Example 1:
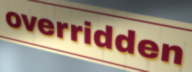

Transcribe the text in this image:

overridden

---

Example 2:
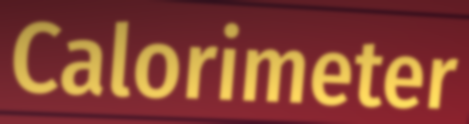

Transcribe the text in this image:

Calorimeter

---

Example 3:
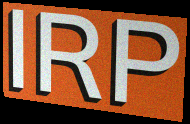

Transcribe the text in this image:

IRP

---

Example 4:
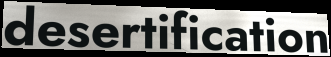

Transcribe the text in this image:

desertification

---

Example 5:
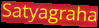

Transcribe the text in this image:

Satyagraha